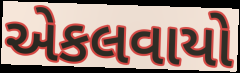
એકલવાયો